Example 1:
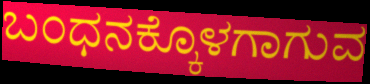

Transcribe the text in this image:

ಬಂಧನಕ್ಕೊಳಗಾಗುವ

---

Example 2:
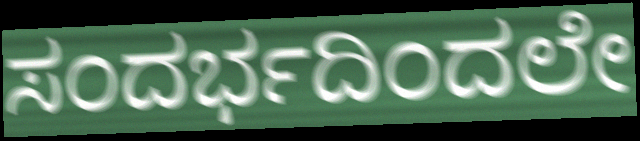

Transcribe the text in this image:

ಸಂದರ್ಭದಿಂದಲೇ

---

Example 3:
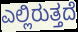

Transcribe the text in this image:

ಎಲ್ಲಿರುತ್ತದೆ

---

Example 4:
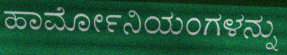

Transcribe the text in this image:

ಹಾರ್ಮೋನಿಯಂಗಳನ್ನು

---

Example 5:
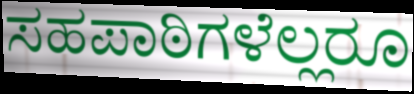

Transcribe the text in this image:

ಸಹಪಾಠಿಗಳೆಲ್ಲರೂ